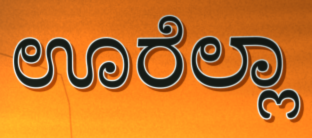
ಊರೆಲ್ಲಾ